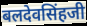
बलदेवसिंहजी